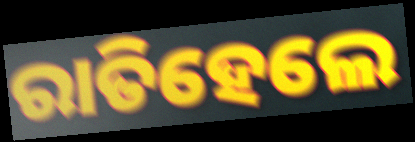
ରାତିହେଲେ